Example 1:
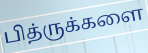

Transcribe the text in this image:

பித்ருக்களை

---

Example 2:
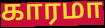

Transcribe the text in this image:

காரமா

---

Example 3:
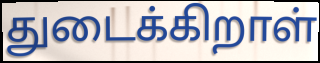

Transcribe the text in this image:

துடைக்கிறாள்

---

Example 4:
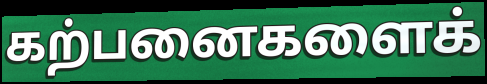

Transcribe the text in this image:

கற்பனைகளைக்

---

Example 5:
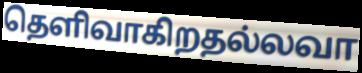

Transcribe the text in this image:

தெளிவாகிறதல்லவா